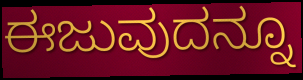
ಈಜುವುದನ್ನೂ